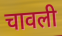
चावली